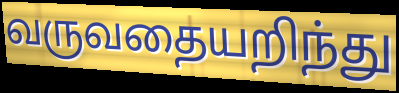
வருவதையறிந்து